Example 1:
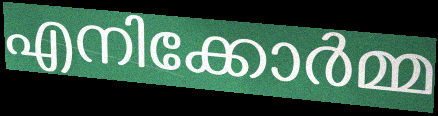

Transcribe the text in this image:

എനിക്കോർമ്മ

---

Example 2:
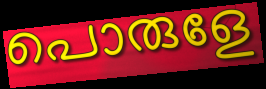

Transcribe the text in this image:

പൊരുളേ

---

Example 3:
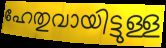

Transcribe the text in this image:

ഹേതുവായിട്ടുള്ള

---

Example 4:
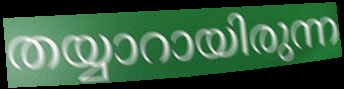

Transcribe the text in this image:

തയ്യാറായിരുന്ന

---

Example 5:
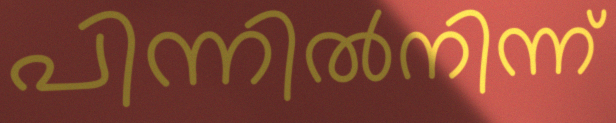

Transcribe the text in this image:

പിന്നിൽനിന്ന്